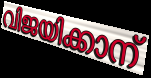
വിജയിക്കാന്